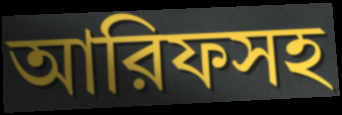
আরিফসহ